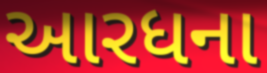
આરધના